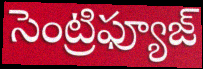
సెంట్రిఫ్యూజ్